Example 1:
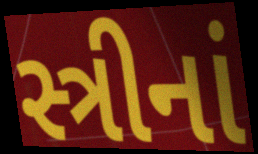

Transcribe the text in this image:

સ્ત્રીનાં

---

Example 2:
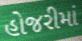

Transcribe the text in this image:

હોજરીમાં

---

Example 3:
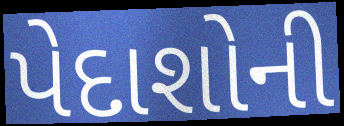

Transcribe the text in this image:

પેદાશોની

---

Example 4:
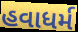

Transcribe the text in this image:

હવાધર્મ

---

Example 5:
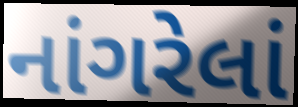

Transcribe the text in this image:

નાંગરેલાં